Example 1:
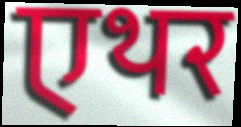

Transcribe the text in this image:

एथर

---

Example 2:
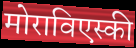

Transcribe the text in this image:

मोराविएस्की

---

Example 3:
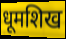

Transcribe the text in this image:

धूमशिख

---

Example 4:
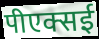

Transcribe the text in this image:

पीएक्सई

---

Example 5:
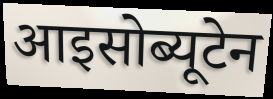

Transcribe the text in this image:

आइसोब्यूटेन